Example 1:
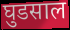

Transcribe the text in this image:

घुडसाल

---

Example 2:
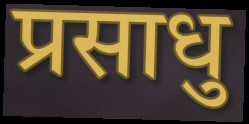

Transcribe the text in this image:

प्रसाधु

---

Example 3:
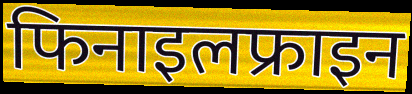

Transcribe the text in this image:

फिनाइलफ्राइन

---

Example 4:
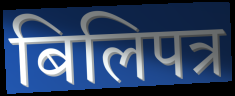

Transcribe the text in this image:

बिलिपत्र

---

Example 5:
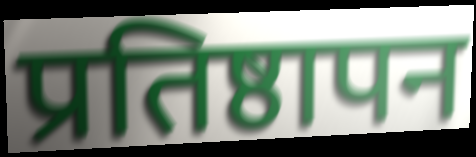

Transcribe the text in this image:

प्रतिष्ठापन